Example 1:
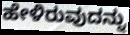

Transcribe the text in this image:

ಹೇಳಿರುವುದನ್ನು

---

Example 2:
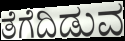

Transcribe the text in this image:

ತೆಗೆದಿಡುವ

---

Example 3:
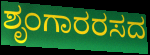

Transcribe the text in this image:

ಶೃಂಗಾರರಸದ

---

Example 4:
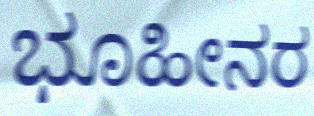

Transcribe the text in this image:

ಭೂಹೀನರ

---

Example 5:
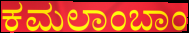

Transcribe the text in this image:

ಕಮಲಾಂಬಾಂ